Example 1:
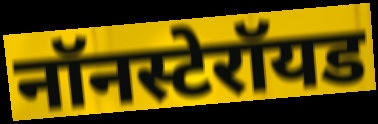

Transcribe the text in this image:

नॉनस्टेरॉयड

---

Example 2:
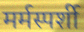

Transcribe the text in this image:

मर्मस्पर्शी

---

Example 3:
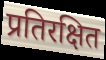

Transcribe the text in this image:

प्रतिरक्षित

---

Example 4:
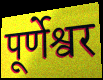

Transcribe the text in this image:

पूर्णेश्वर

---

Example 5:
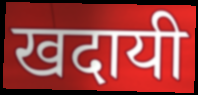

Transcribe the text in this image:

खदायी